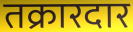
तक्रारदार